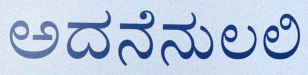
ಅದನೆನುಲಲಿ